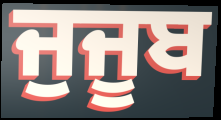
ਜੁਜੂਬ